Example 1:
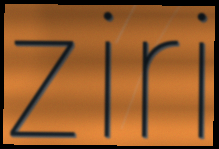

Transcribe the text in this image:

ziri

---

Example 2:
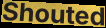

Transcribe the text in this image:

Shouted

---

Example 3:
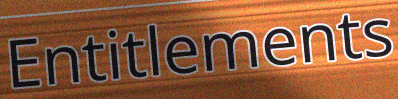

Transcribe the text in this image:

Entitlements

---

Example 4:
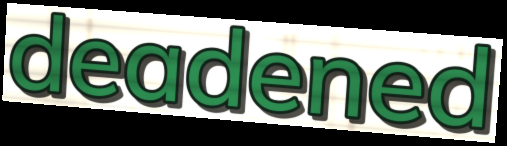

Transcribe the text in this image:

deadened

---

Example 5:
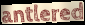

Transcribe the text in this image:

antlered